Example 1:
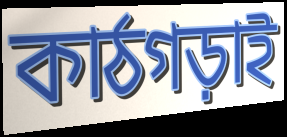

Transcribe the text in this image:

কাঠগড়াই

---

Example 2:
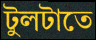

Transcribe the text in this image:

টুলটাতে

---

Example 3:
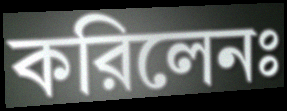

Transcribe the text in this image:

করিলেনঃ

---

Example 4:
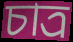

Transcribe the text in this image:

চাত্র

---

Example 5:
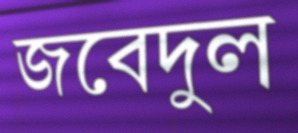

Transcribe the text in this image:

জবেদুল